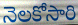
నెలకోసారి